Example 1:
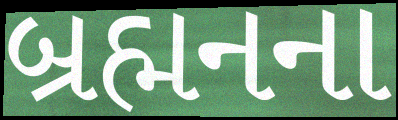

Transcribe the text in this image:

બ્રહ્મનના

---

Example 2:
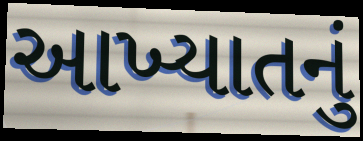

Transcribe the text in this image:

આખ્યાતનું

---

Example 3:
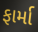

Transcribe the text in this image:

ફાર્મા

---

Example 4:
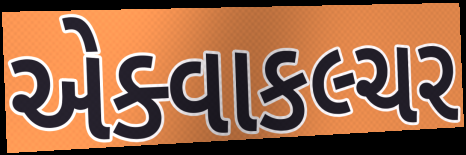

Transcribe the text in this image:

એક્વાકલ્ચર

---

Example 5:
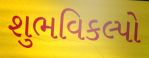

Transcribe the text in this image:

શુભવિકલ્પો